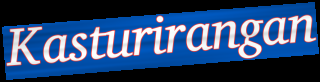
Kasturirangan